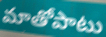
మాతోపాటు